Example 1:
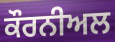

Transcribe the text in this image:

ਕੌਰਨੀਅਲ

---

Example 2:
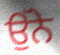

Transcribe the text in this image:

ਉੱਨੇ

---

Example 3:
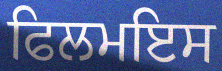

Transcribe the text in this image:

ਫਿਲਮਇਸ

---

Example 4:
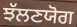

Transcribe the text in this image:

ਝੱਲਣਯੋਗ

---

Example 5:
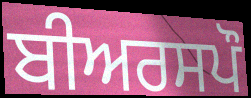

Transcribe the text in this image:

ਬੀਅਰਸਪੌ